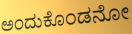
ಅಂದುಕೊಂಡನೋ